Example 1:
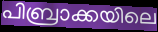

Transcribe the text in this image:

പിബ്രാക്കയിലെ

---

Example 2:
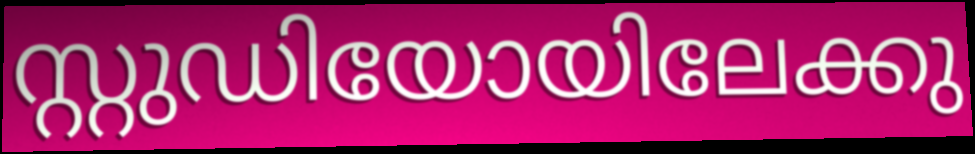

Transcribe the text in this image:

സ്റ്റുഡിയോയിലേക്കു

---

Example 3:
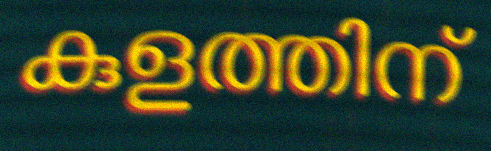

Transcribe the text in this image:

കുളത്തിന്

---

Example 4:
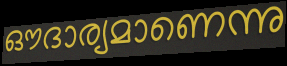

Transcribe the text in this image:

ഔദാര്യമാണെന്നു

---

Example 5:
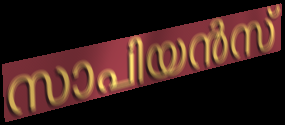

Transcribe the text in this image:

സാപിയൻസ്